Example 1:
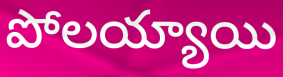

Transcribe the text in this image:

పోలయ్యాయి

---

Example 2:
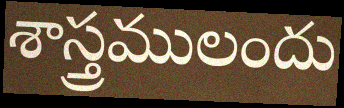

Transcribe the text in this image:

శాస్త్రములందు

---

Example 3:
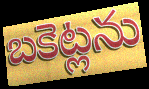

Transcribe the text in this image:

బకెట్లను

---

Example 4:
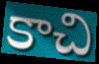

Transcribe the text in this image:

కాచి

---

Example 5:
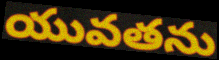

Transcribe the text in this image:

యువతను